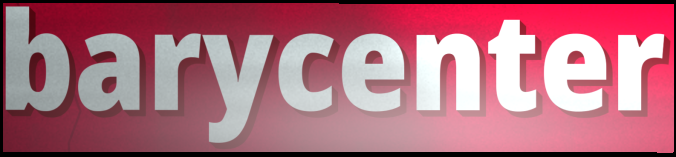
barycenter